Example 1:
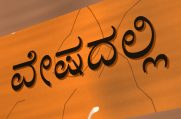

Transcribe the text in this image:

ವೇಷದಲ್ಲಿ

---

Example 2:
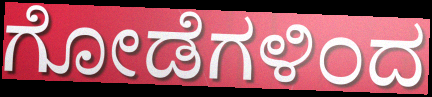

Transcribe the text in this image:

ಗೋಡೆಗಳಿಂದ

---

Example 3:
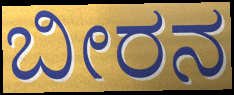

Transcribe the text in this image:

ಬೀರನ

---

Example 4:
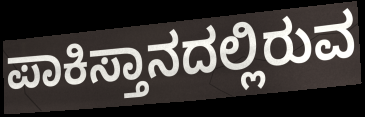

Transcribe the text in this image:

ಪಾಕಿಸ್ತಾನದಲ್ಲಿರುವ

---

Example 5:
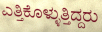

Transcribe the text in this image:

ಎತ್ತಿಕೊಳ್ಳುತ್ತಿದ್ದರು